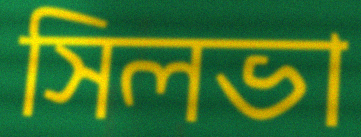
সিলভা